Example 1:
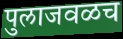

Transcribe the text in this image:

पुलाजवळच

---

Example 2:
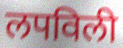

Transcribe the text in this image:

लपविली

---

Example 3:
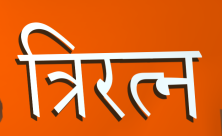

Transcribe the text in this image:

त्रिरत्न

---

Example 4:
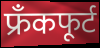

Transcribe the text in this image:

फ्रँकफूर्ट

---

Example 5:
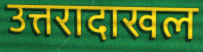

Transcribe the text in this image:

उत्तरादाखल